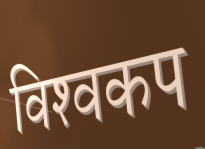
विश्‍वकप